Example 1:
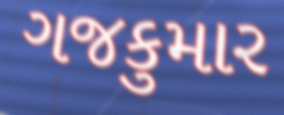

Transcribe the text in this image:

ગજકુમાર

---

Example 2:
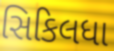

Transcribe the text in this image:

સિકિલધા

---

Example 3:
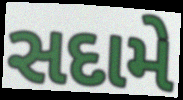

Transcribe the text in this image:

સદામે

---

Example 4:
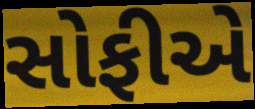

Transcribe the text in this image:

સોફીએ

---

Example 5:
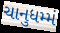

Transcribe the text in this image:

ચાનુધમ્મં